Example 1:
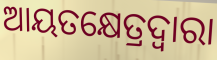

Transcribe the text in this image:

ଆୟତକ୍ଷେତ୍ରଦ୍ଵାରା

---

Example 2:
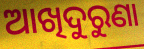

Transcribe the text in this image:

ଆଖିଦୁରୁଣା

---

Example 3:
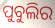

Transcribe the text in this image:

ପୁବୁଲିର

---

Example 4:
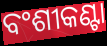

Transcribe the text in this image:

ବଂଶୀକଣ୍ଟା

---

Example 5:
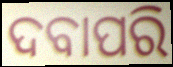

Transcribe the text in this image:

ଦବାପରି